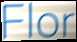
Flor